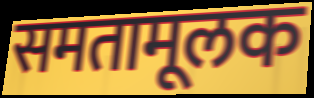
समतामूलक